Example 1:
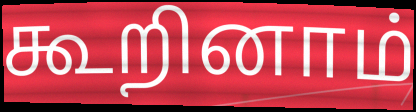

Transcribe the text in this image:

கூறினாம்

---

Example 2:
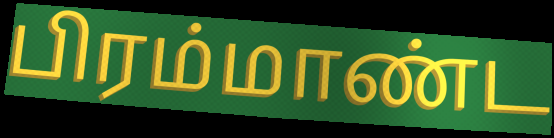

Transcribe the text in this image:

பிரம்மாண்ட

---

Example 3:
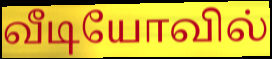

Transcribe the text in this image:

வீடியோவில்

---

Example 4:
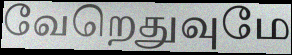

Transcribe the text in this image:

வேறெதுவுமே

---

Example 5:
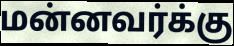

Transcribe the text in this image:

மன்னவர்க்கு